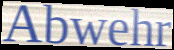
Abwehr